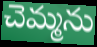
చెమ్మను